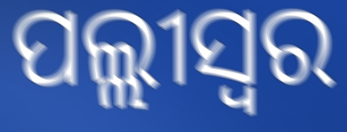
ପଲ୍ଲୀସ୍ଵର